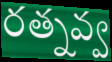
రత్నవ్వ